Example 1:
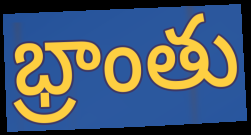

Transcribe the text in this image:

భ్రాంతు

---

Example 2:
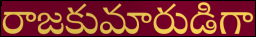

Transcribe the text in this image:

రాజకుమారుడిగా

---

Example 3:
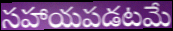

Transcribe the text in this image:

సహాయపడటమే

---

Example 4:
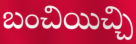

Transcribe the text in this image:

బంచియిచ్చి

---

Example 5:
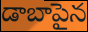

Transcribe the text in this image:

డాబాపైన